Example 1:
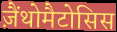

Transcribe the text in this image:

ज़ैंथोमैटोसिस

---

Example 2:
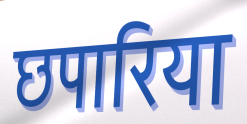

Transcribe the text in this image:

छपारिया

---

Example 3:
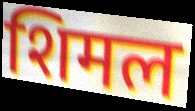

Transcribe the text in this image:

शिमल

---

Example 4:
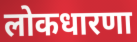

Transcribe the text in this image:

लोकधारणा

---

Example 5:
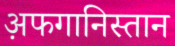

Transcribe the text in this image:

अ़फगानिस्तान